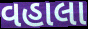
વહાલા